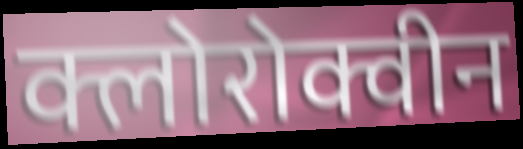
क्लोरोक्वीन